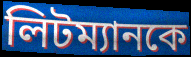
লিটম্যানকে